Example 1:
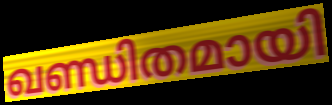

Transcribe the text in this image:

ഖണ്ഡിതമായി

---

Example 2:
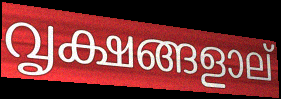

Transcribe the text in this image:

വൃക്ഷങ്ങളാല്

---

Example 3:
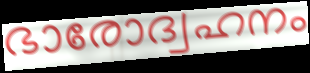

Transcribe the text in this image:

ഭാരോദ്വഹനം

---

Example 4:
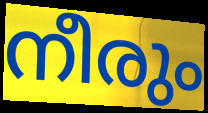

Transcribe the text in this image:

നീരും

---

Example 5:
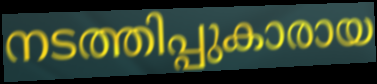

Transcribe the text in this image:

നടത്തിപ്പുകാരായ